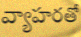
వ్యాహరతో